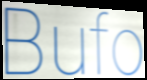
Bufo